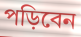
পড়িবেন